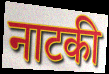
नाटकी